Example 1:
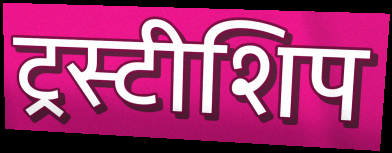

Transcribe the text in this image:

ट्रस्टीशिप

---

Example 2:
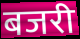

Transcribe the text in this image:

बजरी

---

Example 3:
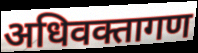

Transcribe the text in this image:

अधिवक्तागण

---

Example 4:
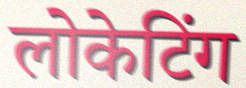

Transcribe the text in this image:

लोकेटिंग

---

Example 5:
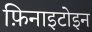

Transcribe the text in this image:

फ़िनाइटोइन